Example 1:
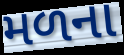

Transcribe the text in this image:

મળના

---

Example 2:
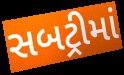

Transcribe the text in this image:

સબટ્રીમાં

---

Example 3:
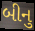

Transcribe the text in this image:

બીનુ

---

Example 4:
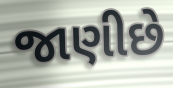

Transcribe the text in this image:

જાણીછે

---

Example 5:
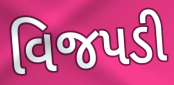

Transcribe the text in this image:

વિજપડી